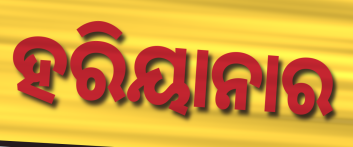
ହରିୟାନାର